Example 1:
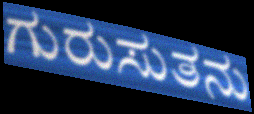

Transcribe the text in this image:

ಗುರುಸುತನು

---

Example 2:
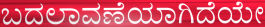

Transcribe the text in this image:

ಬದಲಾವಣೆಯಾಗಿದೆಯೇ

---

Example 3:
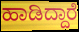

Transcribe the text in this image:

ಹಾಡಿದ್ದಾರೆ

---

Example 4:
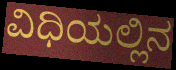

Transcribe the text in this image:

ವಿಧಿಯಲ್ಲಿನ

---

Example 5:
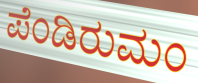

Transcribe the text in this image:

ಪೆಂಡಿರುಮಂ